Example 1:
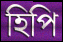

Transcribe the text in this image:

হিপি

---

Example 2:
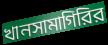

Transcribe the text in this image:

খানসামাগিরির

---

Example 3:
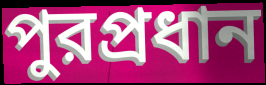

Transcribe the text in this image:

পুরপ্রধান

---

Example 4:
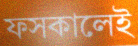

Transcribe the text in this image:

ফসকালেই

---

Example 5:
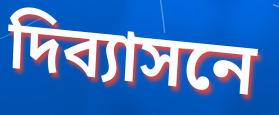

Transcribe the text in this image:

দিব্যাসনে